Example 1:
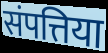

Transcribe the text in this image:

संपत्तिया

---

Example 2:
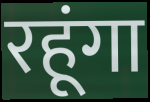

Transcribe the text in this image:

रहूंगा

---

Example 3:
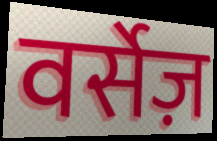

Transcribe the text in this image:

वर्सेज़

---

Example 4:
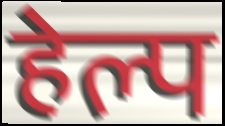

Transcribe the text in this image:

हेल्‍प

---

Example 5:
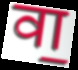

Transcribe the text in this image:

वा॒